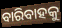
ବାରିବାହକୁ